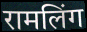
रामलिंग